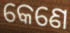
କେଣେ